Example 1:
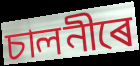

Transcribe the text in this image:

চালনীৰে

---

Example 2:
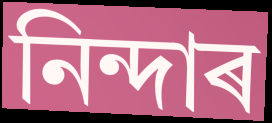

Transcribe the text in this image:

নিন্দাৰ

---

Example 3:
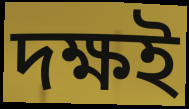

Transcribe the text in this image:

দক্ষই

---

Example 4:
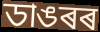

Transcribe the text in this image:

ডাঙৰৰ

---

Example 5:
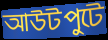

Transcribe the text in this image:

আউটপুটে